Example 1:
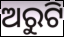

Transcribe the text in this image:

ଅରୁଟି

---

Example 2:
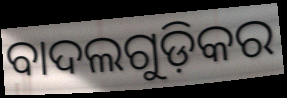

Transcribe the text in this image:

ବାଦଲଗୁଡ଼ିକର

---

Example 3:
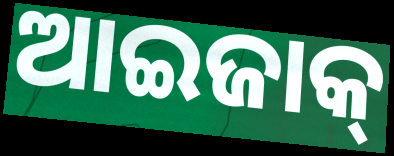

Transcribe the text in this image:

ଆଇଜାକ୍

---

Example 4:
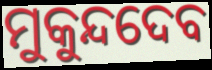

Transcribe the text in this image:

ମୁକୁନ୍ଦଦେବ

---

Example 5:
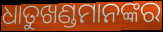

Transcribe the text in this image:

ଧାତୁଖଣ୍ଡମାନଙ୍କର